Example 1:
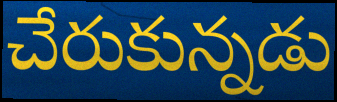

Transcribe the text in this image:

చేరుకున్నడు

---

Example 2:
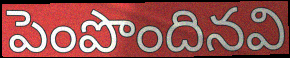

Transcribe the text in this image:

పెంపొందినవి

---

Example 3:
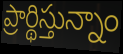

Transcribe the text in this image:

ప్రార్థిస్తున్నాం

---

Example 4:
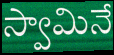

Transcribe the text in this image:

స్వామినే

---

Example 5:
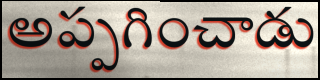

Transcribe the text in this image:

అప్పగించాడు